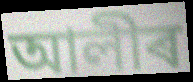
আলীৰ